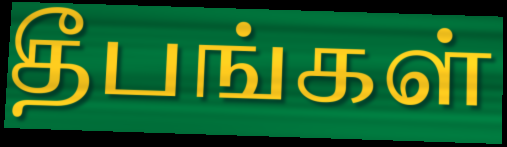
தீபங்கள்